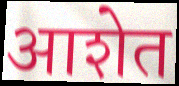
आशेत